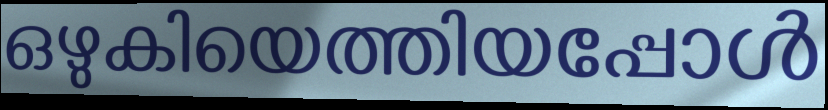
ഒഴുകിയെത്തിയപ്പോൾ